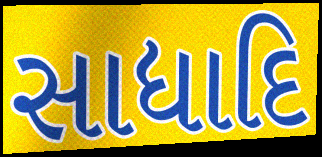
સાદ્યાદિ